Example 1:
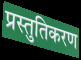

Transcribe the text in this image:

प्रस्तुतिकरण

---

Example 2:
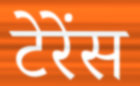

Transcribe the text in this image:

टेरेंस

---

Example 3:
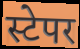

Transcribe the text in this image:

स्टेपर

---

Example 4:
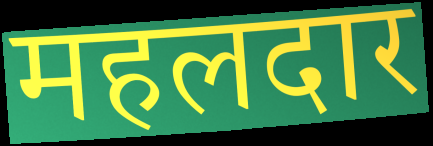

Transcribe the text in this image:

महलदार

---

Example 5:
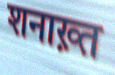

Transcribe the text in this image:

शनाख़्त